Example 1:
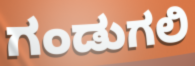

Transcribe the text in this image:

ಗಂಡುಗಲಿ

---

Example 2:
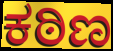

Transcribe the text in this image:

ಕಠಿಣ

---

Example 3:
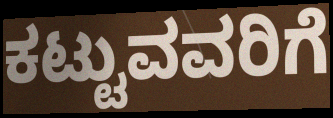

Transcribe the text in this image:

ಕಟ್ಟುವವರಿಗೆ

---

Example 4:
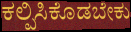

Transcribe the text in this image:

ಕಲ್ಪಿಸಿಕೊಡಬೇಕು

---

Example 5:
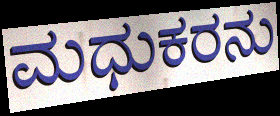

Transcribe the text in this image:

ಮಧುಕರನು